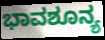
ಭಾವಶೂನ್ಯ